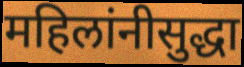
महिलांनीसुद्धा